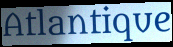
Atlantique